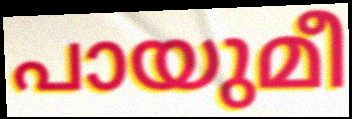
പായുമീ